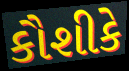
કૌશીકે